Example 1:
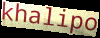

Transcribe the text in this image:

khalipo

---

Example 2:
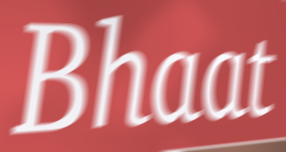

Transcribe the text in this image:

Bhaat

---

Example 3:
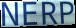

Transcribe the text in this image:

NERP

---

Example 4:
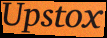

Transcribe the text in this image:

Upstox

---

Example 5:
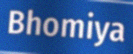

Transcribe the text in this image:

Bhomiya